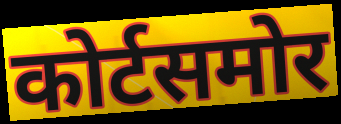
कोर्टसमोर